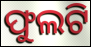
ଫୁଲଟି